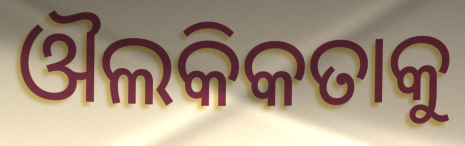
ଔଲକିକତାକୁ